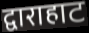
द्वाराहाट